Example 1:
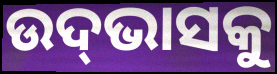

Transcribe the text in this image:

ଉଦ୍‌ଭାସକୁ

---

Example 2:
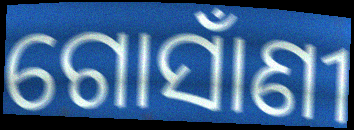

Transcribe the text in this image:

ଗୋସାଁଣୀ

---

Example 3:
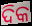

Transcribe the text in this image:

ଦିକ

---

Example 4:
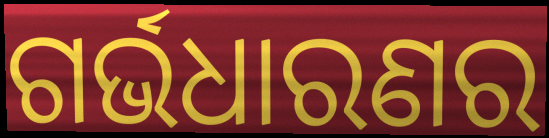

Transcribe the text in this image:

ଗର୍ଭଧାରଣର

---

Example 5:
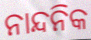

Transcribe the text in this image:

ନାନ୍ଦନିକ